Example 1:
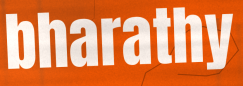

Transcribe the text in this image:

bharathy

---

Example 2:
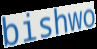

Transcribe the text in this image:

bishwo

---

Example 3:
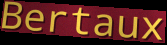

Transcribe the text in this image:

Bertaux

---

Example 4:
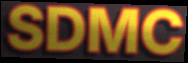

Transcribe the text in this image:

SDMC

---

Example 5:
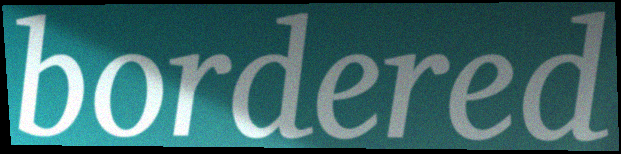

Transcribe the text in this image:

bordered